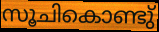
സൂചികൊണ്ടു്